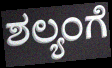
ಶಲ್ಯಂಗೆ